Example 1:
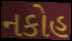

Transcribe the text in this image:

નકોહ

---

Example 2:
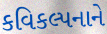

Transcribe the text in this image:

કવિકલ્પનાને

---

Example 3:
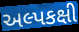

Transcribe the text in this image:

અલ્પકક્ષી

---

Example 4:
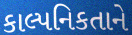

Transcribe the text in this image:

કાલ્પનિકતાને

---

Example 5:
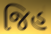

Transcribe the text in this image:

જિહ